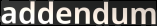
addendum